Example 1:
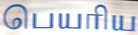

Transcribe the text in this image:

பெயரிய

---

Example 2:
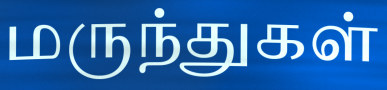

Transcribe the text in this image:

மருந்துகள்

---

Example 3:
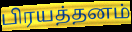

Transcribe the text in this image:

பிரயத்தனம்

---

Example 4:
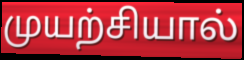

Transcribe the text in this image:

முயற்சியால்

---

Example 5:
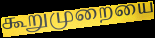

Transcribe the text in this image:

கூறுமுறையை